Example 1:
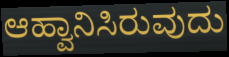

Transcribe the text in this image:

ಆಹ್ವಾನಿಸಿರುವುದು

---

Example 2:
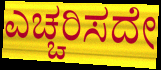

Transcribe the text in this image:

ಎಚ್ಚರಿಸದೇ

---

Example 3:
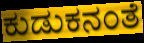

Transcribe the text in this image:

ಕುಡುಕನಂತೆ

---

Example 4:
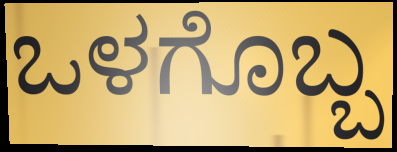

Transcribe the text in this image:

ಒಳಗೊಬ್ಬ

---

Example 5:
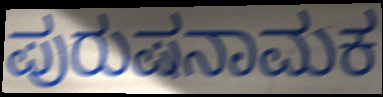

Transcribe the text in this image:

ಪುರುಷನಾಮಕ